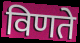
विणते